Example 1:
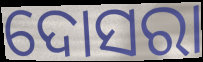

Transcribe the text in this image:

ଦୋସରା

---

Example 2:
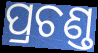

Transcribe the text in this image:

ପ୍ରଚଣ୍ଡ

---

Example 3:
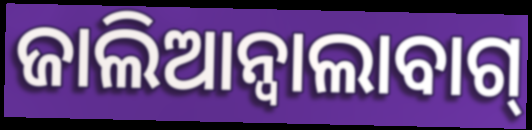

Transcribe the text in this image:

ଜାଲିଆନ୍ଵାଲାବାଗ୍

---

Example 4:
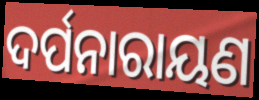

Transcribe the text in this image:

ଦର୍ପନାରାୟଣ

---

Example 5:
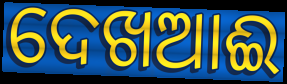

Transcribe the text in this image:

ଦେଖଆଈ